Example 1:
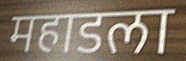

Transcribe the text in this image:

महाडला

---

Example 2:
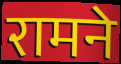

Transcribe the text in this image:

रामने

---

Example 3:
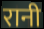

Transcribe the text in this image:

रानी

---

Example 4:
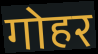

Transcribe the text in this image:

गोहर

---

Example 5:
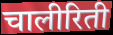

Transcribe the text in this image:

चालीरिती